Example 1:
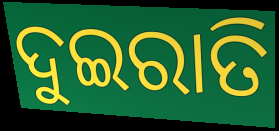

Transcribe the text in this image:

ଦୁଇରାତି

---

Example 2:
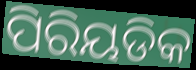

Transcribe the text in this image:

ପିରିୟଡିକ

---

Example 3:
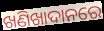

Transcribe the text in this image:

ଖଣିଖାଦାନରେ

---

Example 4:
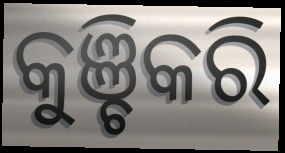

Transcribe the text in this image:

କୁଞ୍ଚିକରି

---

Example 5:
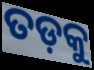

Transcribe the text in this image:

ତଡ଼କୁ